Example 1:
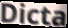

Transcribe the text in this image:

Dicta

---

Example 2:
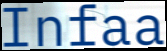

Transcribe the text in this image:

Infaa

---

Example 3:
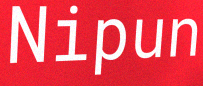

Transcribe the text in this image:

Nipun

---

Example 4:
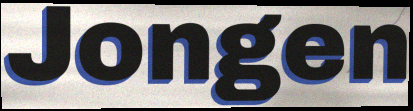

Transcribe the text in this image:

Jongen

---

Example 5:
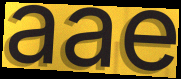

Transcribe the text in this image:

aae